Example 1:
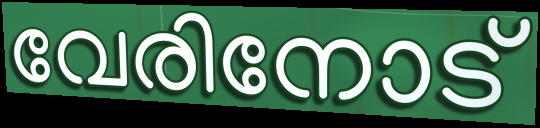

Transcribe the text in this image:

വേരിനോട്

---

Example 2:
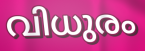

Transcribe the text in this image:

വിധുരം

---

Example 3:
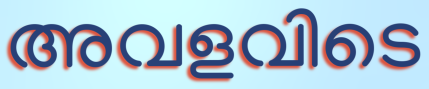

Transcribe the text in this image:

അവളവിടെ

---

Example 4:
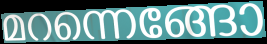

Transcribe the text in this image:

മറന്നെങ്ങോ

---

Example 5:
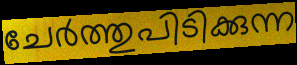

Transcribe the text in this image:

ചേർത്തുപിടിക്കുന്ന